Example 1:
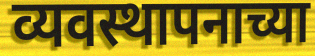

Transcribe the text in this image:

व्यवस्थापनाच्या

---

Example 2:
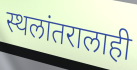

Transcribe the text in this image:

स्थलांतरालाही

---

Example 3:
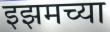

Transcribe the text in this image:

इझमच्या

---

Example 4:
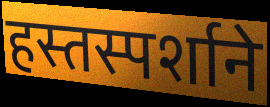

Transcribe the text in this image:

हस्तस्पर्शाने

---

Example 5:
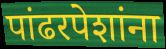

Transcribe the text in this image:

पांढरपेशांना